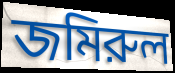
জমিরুল